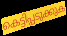
കെട്ടിപ്പടുക്കുക